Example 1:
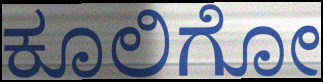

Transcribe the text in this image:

ಕೂಲಿಗೋ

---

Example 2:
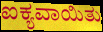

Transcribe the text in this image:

ಐಕ್ಯವಾಯಿತು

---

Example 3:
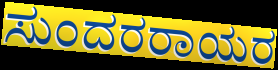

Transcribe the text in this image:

ಸುಂದರರಾಯರ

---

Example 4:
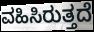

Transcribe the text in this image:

ವಹಿಸಿರುತ್ತದೆ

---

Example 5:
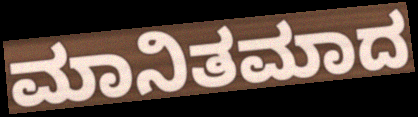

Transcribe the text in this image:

ಮಾನಿತಮಾದ